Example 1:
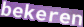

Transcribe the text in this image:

bekeren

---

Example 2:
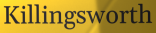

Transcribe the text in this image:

Killingsworth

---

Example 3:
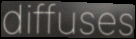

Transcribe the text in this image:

diffuses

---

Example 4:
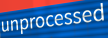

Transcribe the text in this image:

unprocessed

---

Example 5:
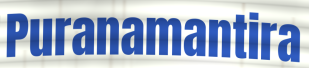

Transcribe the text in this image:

Puranamantira